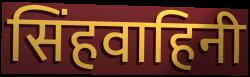
सिंहवाहिनी